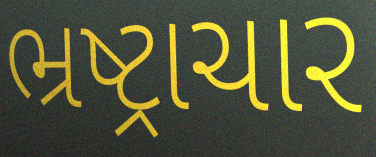
ભ્રષ્ટ્રાચાર